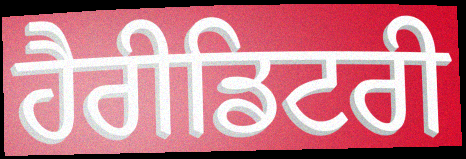
ਹੈਰੀਡਿਟਰੀ